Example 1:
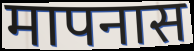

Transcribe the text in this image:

मापनास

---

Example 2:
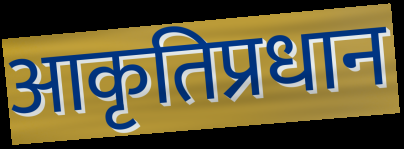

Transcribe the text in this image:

आकृतिप्रधान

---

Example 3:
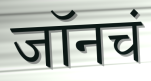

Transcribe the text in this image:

जॉनचं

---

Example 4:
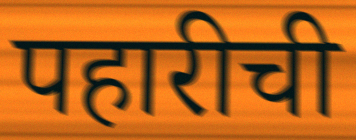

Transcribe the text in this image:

पहारीची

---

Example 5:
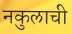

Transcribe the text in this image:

नकुलाची